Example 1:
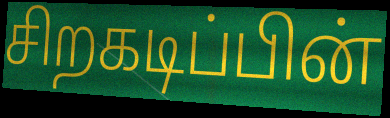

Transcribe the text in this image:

சிறகடிப்பின்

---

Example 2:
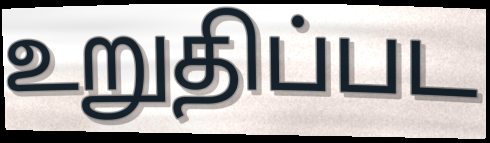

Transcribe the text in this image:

உறுதிப்பட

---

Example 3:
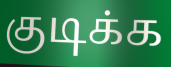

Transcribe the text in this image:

குடிக்க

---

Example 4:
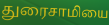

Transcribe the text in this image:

துரைசாமியை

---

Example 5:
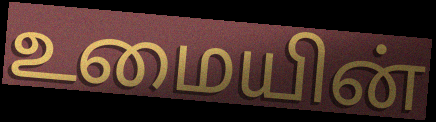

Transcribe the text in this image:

உமையின்